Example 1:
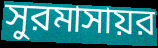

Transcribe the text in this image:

সুরমাসায়র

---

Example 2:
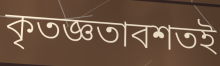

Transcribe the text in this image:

কৃতজ্ঞতাবশতই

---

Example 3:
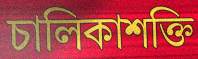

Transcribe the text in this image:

চালিকাশক্তি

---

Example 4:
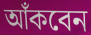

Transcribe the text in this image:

আঁকবেন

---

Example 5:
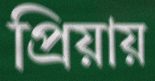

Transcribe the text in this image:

প্রিয়ায়